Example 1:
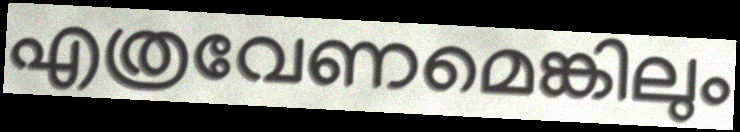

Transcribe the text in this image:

എത്രവേണമെങ്കിലും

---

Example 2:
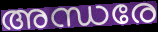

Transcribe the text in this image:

അന്ധരേ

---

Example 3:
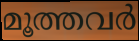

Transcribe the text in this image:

മൂത്തവർ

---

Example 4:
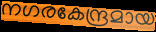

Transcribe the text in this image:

നഗരകേന്ദ്രമായ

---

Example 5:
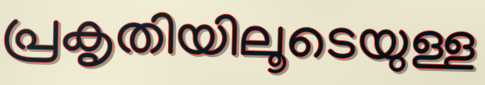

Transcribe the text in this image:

പ്രകൃതിയിലൂടെയുള്ള